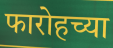
फारोहच्या